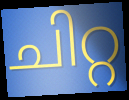
ചിറ്റ